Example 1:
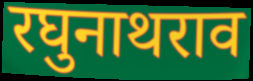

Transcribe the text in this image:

रघुनाथराव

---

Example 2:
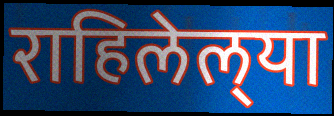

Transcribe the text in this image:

राहिलेल्या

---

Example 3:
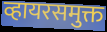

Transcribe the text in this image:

व्हायरसमुक्त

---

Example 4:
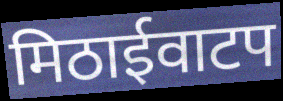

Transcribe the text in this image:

मिठाईवाटप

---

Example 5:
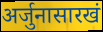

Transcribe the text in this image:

अर्जुनासारखं